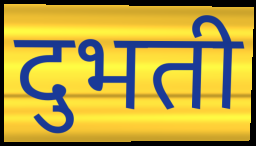
दुभती